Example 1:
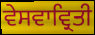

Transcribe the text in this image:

ਵੇਸਵਾਵ੍ਰਿਤੀ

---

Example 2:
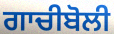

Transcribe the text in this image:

ਗਾਚੀਬੋਲੀ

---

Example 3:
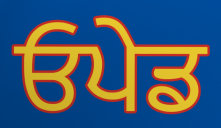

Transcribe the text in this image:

ਓਪੇਡ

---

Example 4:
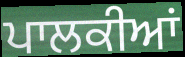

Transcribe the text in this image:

ਪਾਲਕੀਆਂ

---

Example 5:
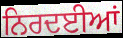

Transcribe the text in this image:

ਨਿਰਦਈਆਂ